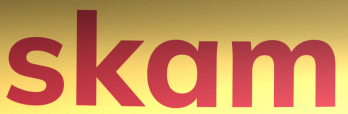
skam